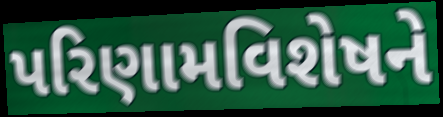
પરિણામવિશેષને